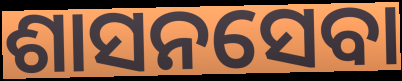
ଶାସନସେବା